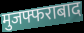
मुजफ्फराबाद